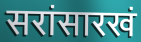
सरांसारखं